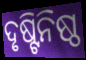
ଦୃଷ୍ଟିନିଷ୍ଠ